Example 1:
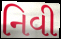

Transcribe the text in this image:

નિવી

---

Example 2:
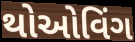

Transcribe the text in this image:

થોઓવિંગ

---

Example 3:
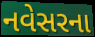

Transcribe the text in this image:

નવેસરના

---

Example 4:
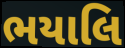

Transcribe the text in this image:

ભયાલિ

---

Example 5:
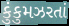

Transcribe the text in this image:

કુંકુમઝરતાં